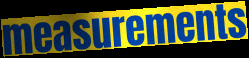
measurements